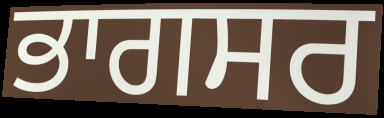
ਭਾਗਸਰ